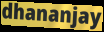
dhananjay